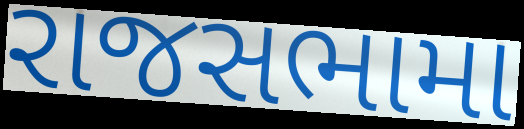
રાજસભામા